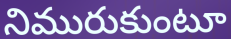
నిమురుకుంటూ